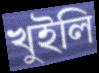
খুইলি